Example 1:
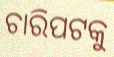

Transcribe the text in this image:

ଚାରିପଟକୁ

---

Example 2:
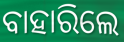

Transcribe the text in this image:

ବାହାରିଲେ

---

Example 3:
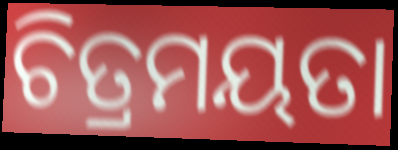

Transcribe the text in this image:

ଚିତ୍ରମୟତା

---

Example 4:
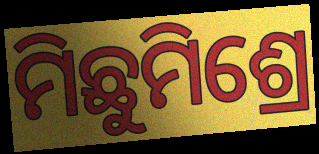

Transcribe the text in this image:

ମିଛୁମିଶ୍ରେ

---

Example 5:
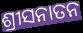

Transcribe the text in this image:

ଶ୍ରୀସନାତନ